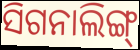
ସିଗନାଲିଙ୍ଗ୍